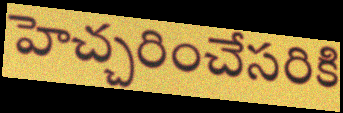
హెచ్చరించేసరికి